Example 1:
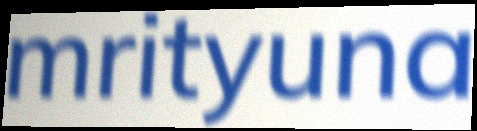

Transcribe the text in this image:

mrityuna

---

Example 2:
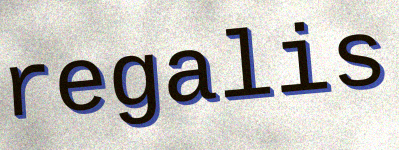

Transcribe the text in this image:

regalis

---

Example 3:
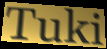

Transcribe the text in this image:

Tuki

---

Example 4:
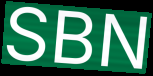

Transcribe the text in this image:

SBN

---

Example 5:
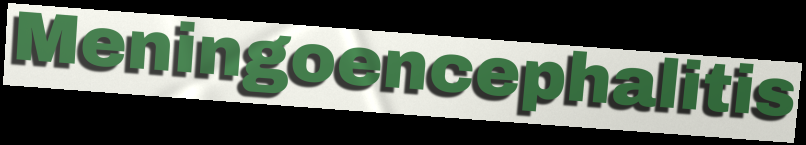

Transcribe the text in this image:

Meningoencephalitis